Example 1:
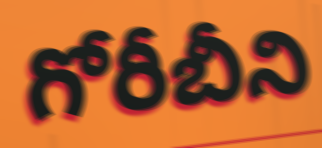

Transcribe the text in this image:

గోరీబీని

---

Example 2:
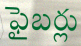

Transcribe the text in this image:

ఫైబర్లు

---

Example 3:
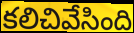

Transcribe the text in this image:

కలిచివేసింది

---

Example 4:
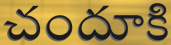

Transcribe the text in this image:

చందూకి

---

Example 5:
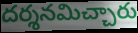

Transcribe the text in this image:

దర్శనమిచ్చారు